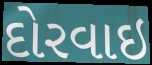
દોરવાઇ